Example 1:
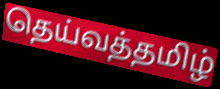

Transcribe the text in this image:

தெய்வத்தமிழ்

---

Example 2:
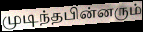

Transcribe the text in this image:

முடிந்தபின்னரும்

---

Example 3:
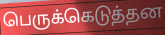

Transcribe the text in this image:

பெருக்கெடுத்தன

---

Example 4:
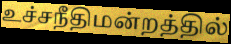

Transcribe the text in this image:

உச்சநீதிமன்றத்தில்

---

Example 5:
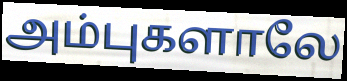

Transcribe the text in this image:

அம்புகளாலே